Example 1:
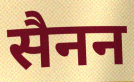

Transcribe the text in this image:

सैनन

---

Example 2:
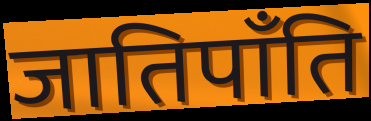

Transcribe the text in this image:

जातिपाँति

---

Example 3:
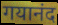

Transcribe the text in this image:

गयानंद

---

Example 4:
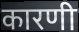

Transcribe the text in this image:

कारणी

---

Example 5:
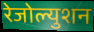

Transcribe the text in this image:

रेजोल्युशन